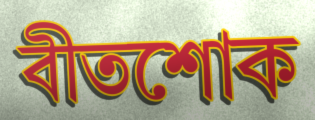
বীতশোক